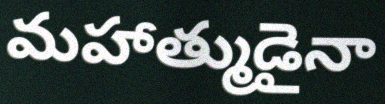
మహాత్ముడైనా